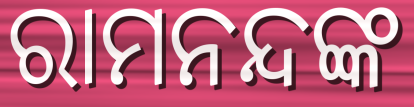
ରାମନନ୍ଦଙ୍କ